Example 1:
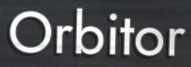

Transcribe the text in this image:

Orbitor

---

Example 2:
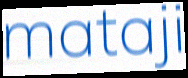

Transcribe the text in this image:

mataji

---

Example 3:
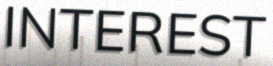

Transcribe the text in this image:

INTEREST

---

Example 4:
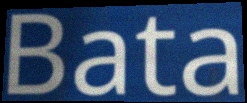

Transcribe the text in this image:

Bata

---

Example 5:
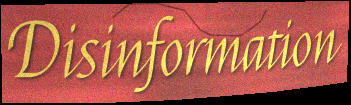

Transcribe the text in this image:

Disinformation